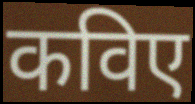
कविए